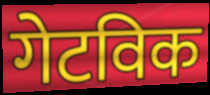
गेटविक